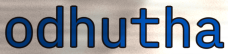
odhutha